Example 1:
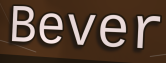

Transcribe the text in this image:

Bever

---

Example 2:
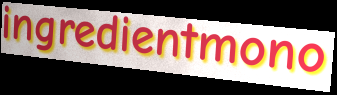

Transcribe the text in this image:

ingredientmono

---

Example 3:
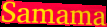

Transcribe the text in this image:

Samama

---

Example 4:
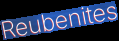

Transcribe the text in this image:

Reubenites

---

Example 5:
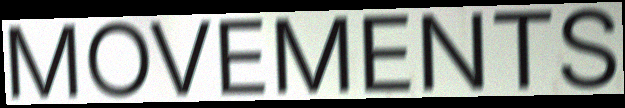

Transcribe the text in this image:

MOVEMENTS